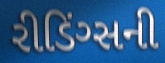
રીડિંગ્સની